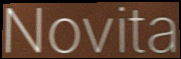
Novita